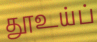
தூஉய்ப்